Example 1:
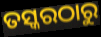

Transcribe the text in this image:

ତସ୍କରଠାରୁ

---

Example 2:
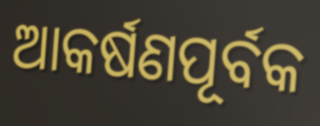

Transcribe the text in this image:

ଆକର୍ଷଣପୂର୍ବକ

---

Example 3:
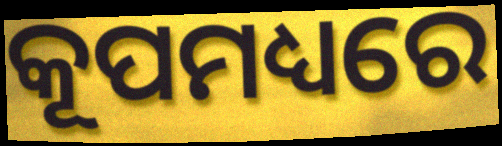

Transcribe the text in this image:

କୂପମଧ୍ୟରେ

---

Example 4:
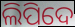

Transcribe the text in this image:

ଲିପିଦେ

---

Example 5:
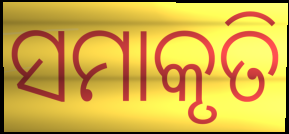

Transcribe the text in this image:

ସମାକୃତି